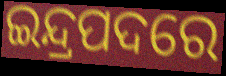
ଇନ୍ଦ୍ରପଦରେ